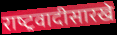
राष्ट्रवादीसारखे